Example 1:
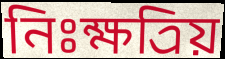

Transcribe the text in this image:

নিঃক্ষত্রিয়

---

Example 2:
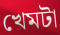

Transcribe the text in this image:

খেমটা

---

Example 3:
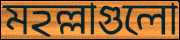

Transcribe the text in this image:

মহল্লাগুলো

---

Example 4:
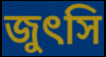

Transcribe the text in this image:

জুৎসি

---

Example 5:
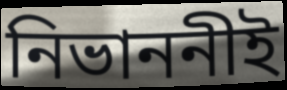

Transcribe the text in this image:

নিভাননীই